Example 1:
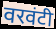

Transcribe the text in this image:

वरवंटी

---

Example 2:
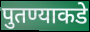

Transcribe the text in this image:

पुतण्याकडे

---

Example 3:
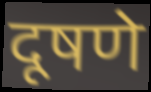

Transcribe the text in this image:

दूषणे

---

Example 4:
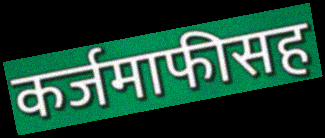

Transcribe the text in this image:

कर्जमाफीसह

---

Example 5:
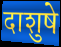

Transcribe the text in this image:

दाशुषे